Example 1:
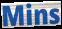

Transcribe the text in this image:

Mins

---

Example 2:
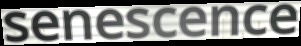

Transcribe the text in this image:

senescence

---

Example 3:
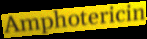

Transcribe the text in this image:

Amphotericin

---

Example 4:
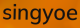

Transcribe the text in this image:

singyoe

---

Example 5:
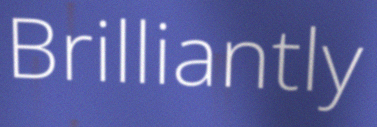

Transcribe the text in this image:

Brilliantly